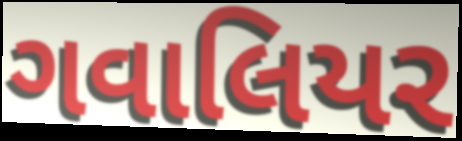
ગવાલિયર